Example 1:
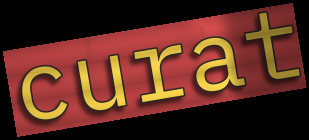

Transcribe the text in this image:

curat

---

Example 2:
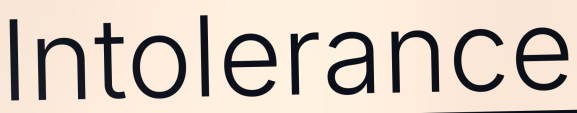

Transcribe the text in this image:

Intolerance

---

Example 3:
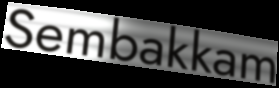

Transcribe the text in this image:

Sembakkam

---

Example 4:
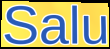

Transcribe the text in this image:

Salu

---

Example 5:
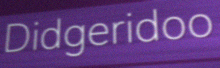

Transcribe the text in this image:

Didgeridoo